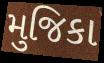
મુજિકા